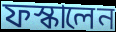
ফস্কালেন